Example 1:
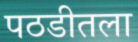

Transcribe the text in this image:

पठडीतला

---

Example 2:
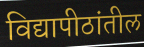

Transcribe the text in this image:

विद्यापीठांतील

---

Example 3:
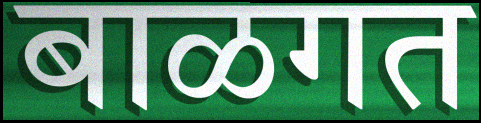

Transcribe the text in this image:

बाळगत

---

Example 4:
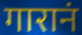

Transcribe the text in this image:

गारानं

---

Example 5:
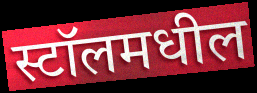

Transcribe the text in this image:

स्टॉलमधील